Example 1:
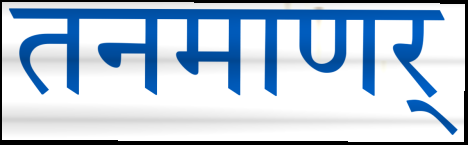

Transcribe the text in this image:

तनमाणर्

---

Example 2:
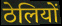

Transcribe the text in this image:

ठेलियों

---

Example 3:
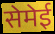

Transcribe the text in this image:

सेमेई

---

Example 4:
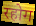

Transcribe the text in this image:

रहोग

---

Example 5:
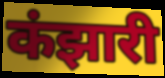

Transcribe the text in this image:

कंझारी